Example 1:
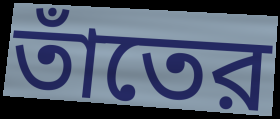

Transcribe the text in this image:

তাঁতের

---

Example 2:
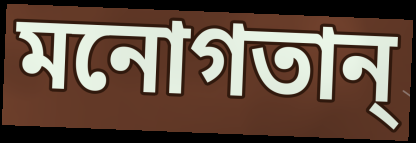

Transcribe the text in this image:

মনোগতান্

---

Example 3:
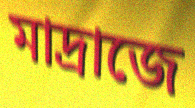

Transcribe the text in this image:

মাদ্রাজে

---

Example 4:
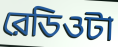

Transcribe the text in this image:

রেডিওটা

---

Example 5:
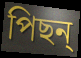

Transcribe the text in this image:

পিছন্